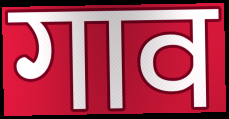
गाव